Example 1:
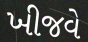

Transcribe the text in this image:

ખીજવે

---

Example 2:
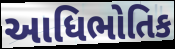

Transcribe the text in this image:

આધિભોતિક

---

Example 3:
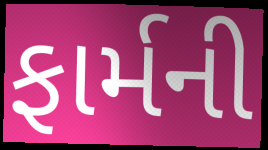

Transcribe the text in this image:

ફાર્મની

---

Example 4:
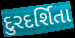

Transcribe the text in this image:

દુરદર્શિતા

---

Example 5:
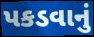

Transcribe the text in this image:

પકડવાનું